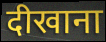
दीखाना